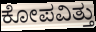
ಕೋಪವಿತ್ತು